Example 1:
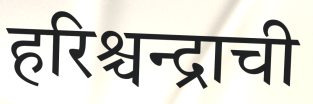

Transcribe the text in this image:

हरिश्चन्द्राची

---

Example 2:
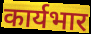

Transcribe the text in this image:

कार्यभार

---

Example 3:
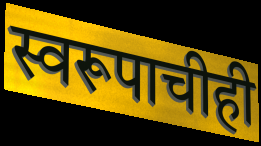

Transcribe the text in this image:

स्वरूपाचीही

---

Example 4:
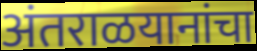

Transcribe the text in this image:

अंतराळयानांचा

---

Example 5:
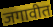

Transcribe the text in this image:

जगावीत